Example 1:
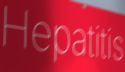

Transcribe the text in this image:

Hepatitis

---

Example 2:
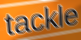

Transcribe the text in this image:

tackle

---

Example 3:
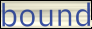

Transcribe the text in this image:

bound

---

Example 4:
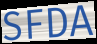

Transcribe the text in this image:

SFDA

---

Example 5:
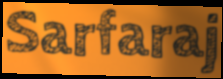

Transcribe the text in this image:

Sarfaraj